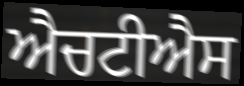
ਐਚਟੀਐਸ